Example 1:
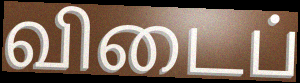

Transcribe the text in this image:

விடைப்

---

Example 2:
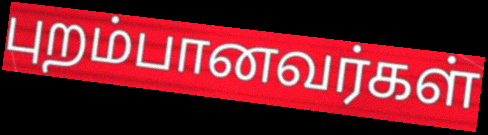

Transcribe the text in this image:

புறம்பானவர்கள்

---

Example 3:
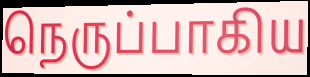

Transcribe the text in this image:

நெருப்பாகிய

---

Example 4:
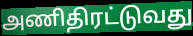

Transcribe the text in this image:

அணிதிரட்டுவது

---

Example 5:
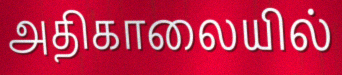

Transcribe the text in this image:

அதிகாலையில்